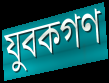
যুবকগণ